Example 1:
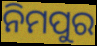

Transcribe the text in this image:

ନିମପୁର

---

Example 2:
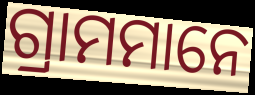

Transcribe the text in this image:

ଗ୍ରାମମାନେ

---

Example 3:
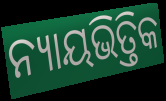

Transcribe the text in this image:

ନ୍ୟାୟଭିତ୍ତିକ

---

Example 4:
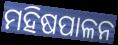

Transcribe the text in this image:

ମହିଷପାଳନ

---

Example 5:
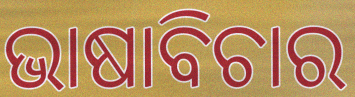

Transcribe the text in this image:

ଭାଷାବିଚାର